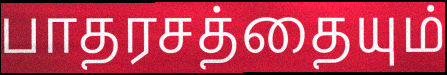
பாதரசத்தையும்